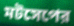
মটসেপের